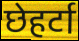
छेहर्टा